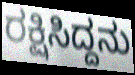
ರಕ್ಷಿಸಿದ್ದನು